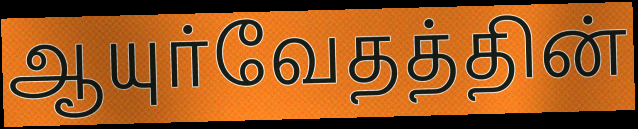
ஆயுர்வேதத்தின்